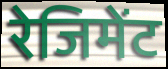
रेजिमेंट